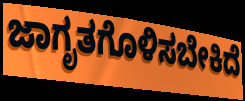
ಜಾಗೃತಗೊಳಿಸಬೇಕಿದೆ